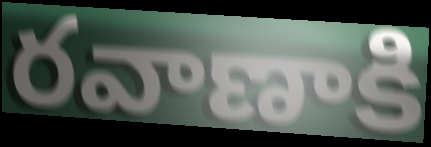
రవాణాకి